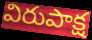
విరుపాక్ష